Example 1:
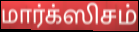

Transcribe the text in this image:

மார்க்ஸிசம்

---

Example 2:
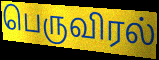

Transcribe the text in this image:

பெருவிரல்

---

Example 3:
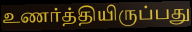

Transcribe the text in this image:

உணர்த்தியிருப்பது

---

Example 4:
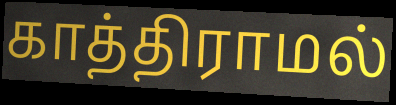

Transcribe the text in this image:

காத்திராமல்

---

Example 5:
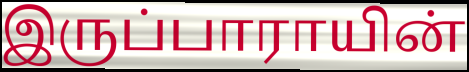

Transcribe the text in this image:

இருப்பாராயின்